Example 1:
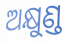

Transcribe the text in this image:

ଅକ୍ଷୁଣ୍ଡ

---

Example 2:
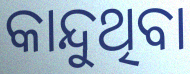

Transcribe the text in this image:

କାନ୍ଦୁଥିବା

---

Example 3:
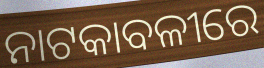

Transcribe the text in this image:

ନାଟକାବଳୀରେ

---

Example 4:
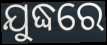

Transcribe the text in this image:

ଯୁଦ୍ଧରେ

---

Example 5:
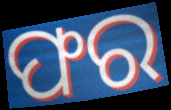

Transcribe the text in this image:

ଫର